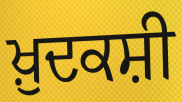
ਖ਼ੁਦਕਸ਼ੀ